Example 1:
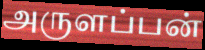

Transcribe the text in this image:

அருளப்பன்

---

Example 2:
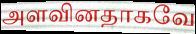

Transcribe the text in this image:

அளவினதாகவே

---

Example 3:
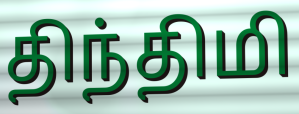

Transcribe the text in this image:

திந்திமி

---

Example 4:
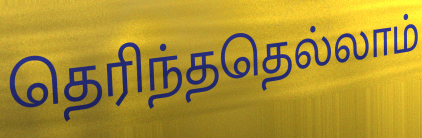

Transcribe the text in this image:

தெரிந்ததெல்லாம்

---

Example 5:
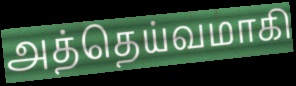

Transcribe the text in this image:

அத்தெய்வமாகி